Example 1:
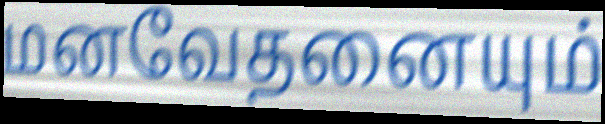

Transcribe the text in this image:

மனவேதனையும்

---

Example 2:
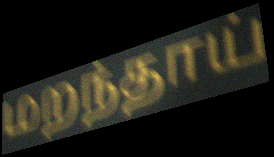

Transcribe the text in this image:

மறந்தாய்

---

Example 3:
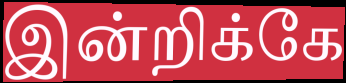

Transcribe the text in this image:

இன்றிக்கே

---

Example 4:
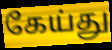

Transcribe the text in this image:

கேய்து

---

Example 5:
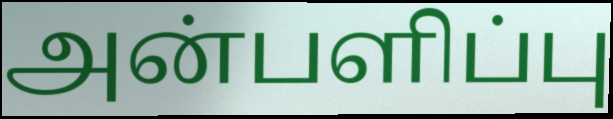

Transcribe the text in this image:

அன்பளிப்பு